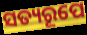
ସତ୍ୟରୂପେ